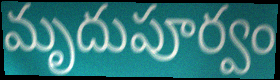
మృదుపూర్వం